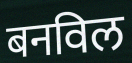
बनविल